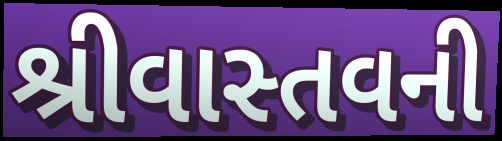
શ્રીવાસ્તવની